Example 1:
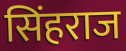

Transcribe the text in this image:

सिंहराज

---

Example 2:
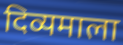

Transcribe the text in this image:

दिव्यमाला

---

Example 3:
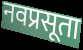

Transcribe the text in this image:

नवप्रसूता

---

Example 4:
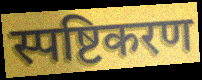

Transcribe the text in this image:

स्पष्टिकरण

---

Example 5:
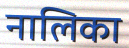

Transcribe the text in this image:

नालिका